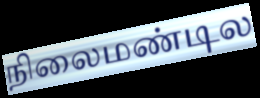
நிலைமண்டில